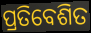
ପ୍ରତିବେଶିତ